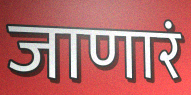
जाणारं